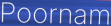
Poornam